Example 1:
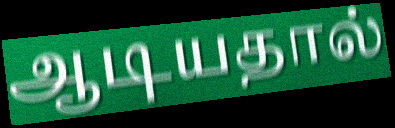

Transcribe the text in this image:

ஆடியதால்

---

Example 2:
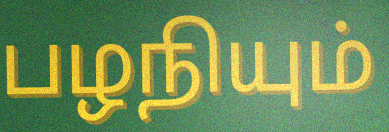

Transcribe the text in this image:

பழநியும்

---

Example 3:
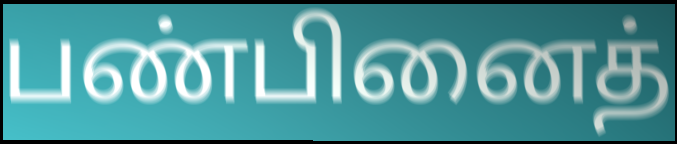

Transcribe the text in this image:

பண்பினைத்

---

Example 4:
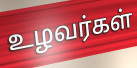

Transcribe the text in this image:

உழவர்கள்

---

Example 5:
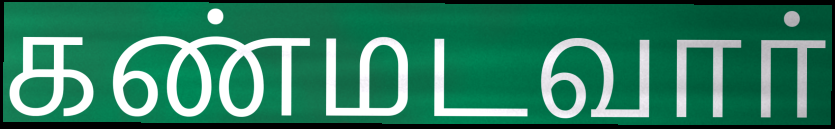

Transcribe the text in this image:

கண்மடவார்